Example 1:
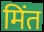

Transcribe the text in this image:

मिंत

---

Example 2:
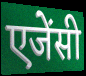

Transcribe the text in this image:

एजेंसी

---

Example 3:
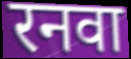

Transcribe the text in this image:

रनवा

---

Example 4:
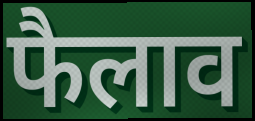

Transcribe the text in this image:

फैलाव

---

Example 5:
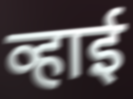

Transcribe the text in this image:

व्हाई